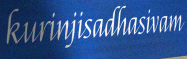
kurinjisadhasivam